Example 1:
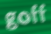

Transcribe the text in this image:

goff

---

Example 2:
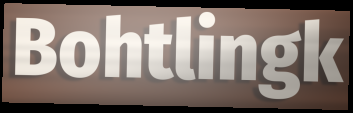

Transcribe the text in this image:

Bohtlingk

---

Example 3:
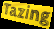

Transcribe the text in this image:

Tazing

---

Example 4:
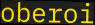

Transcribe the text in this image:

oberoi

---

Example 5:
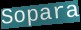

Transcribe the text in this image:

Sopara